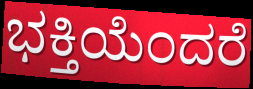
ಭಕ್ತಿಯೆಂದರೆ